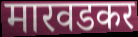
मारवडकर